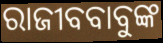
ରାଜୀବବାବୁଙ୍କ